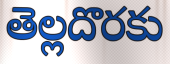
తెల్లదొరకు